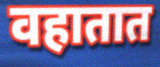
वहातात